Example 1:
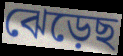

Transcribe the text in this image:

ঝেড়েছ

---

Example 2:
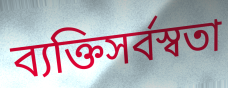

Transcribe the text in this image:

ব্যক্তিসর্বস্বতা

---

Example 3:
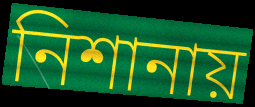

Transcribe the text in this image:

নিশানায়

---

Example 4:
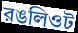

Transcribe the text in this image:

রঙলিওট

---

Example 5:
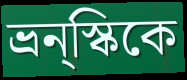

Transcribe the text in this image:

ভ্রন্‌স্কিকে